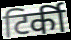
टिर्की